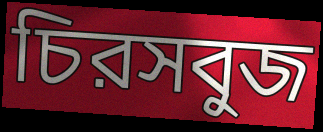
চিরসবুজ